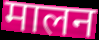
मालन